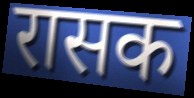
रासक